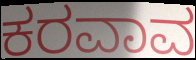
ಕರವಾವ